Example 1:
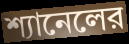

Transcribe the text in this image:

শ্যানেলের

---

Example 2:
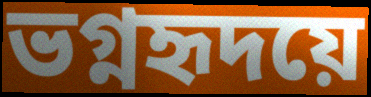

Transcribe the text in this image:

ভগ্নহৃদয়ে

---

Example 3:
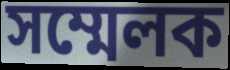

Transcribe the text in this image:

সম্মেলক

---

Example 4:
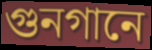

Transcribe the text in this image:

গুনগানে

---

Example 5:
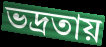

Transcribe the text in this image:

ভদ্রতায়